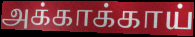
அக்காக்காய்